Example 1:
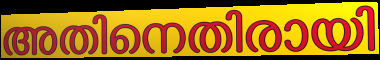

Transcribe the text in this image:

അതിനെതിരായി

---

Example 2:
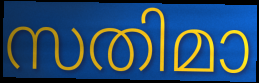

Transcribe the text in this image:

സതിമാ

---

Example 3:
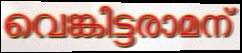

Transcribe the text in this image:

വെങ്കിട്ടരാമന്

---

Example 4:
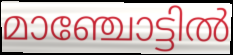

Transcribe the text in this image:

മാഞ്ചോട്ടിൽ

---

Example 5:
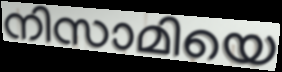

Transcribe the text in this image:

നിസാമിയെ